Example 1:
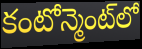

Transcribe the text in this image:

కంటోన్మెంట్‌లో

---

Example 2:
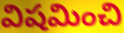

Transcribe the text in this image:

విషమించి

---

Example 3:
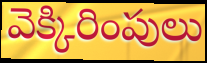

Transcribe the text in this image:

వెక్కిరింపులు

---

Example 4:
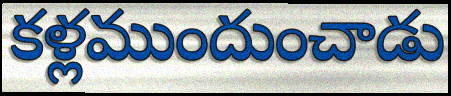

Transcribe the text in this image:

కళ్లముందుంచాడు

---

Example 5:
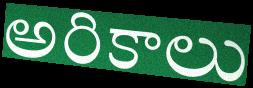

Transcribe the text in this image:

అరికాలు